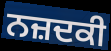
ਨਜ਼ਦਕੀ